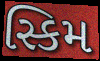
સ્કિમ